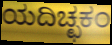
ಯದಿಚ್ಛಕಂ